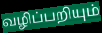
வழிப்பறியும்